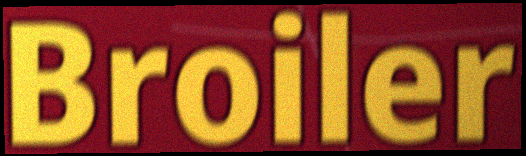
Broiler